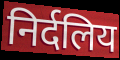
निर्दलिय